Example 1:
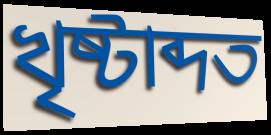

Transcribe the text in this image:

খৃষ্টাব্দত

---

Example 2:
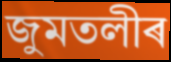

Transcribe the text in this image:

জুমতলীৰ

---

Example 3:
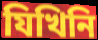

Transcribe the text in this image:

যিখিনি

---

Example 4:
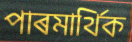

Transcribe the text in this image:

পাৰমাৰ্থিক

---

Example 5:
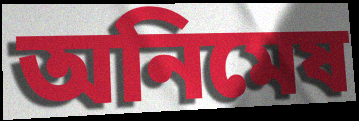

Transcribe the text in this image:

অনিমেষ